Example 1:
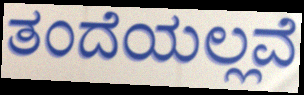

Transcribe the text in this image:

ತಂದೆಯಲ್ಲವೆ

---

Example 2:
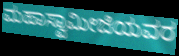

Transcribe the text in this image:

ಮಹಾಸ್ವಾಮೀಜಿಯವರ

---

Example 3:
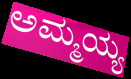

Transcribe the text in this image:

ಅಮ್ಮಯ್ಯ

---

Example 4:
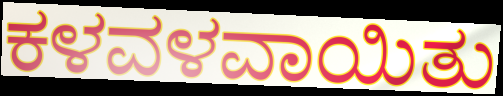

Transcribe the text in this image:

ಕಳವಳವಾಯಿತು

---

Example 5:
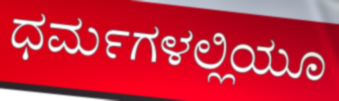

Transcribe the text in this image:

ಧರ್ಮಗಳಲ್ಲಿಯೂ